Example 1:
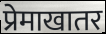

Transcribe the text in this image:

प्रेमाखातर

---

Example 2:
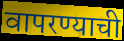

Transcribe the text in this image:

वापरण्याची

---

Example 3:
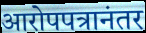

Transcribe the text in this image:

आरोपपत्रानंतर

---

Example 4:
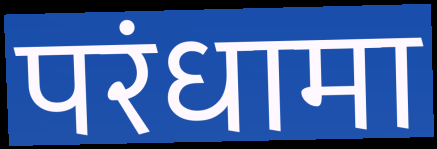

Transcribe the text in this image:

परंधामा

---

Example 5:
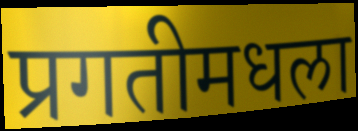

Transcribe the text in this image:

प्रगतीमधला